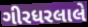
ગીરધરલાલે